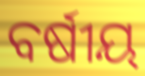
ବର୍ଷୀୟ